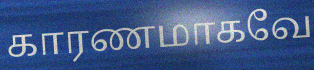
காரணமாகவே